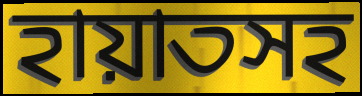
হায়াতসহ